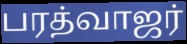
பரத்வாஜர்